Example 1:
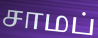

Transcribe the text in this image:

சாமப்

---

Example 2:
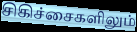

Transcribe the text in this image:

சிகிச்சைகளிலும்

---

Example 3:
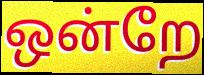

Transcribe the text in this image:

ஒன்றே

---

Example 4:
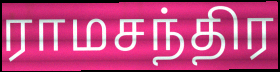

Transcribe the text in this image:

ராமசந்திர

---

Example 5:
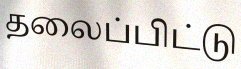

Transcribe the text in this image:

தலைப்பிட்டு